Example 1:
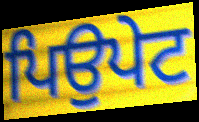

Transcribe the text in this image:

ਪਿਉਪੇਟ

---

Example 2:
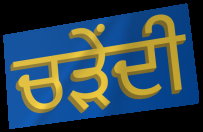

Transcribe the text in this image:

ਚੜੇਂਦੀ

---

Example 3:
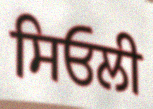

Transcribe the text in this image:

ਸਿਓਲੀ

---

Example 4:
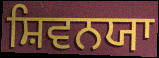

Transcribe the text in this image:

ਸ਼ਿਵਨਯਾ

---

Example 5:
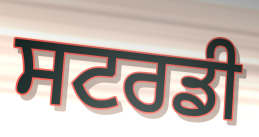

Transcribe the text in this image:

ਸਟਰਡੀ